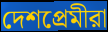
দেশপ্রেমীরা